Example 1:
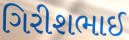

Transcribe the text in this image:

ગિરીશભાઈ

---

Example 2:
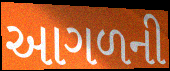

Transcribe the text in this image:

આગળની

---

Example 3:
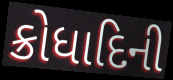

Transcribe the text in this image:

ક્રોધાદિની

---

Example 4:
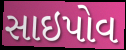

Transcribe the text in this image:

સાઇપોવ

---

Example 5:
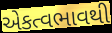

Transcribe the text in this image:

એકત્વભાવથી